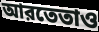
আরতেতাও